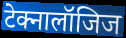
टेक्नालॉजिज